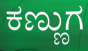
ಕಣ್ಣುಗ